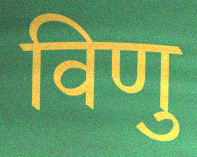
विणु